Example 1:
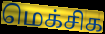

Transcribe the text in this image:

மெக்சிக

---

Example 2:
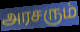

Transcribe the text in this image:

அரசரும்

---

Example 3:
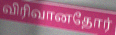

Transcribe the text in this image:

விரிவானதோர்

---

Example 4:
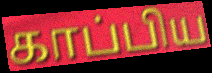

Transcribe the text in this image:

காப்பிய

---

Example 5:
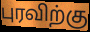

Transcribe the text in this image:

புரவிற்கு